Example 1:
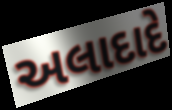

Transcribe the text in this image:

અલાદાદે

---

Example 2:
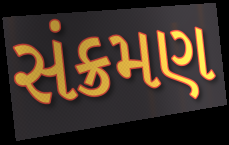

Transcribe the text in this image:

સંક્રમણ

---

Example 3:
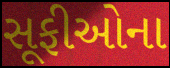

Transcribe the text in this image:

સૂફીઓના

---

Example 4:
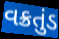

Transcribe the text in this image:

વક્રતુંડ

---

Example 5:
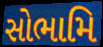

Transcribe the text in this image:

સોભામિ